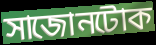
সাজোনটোক